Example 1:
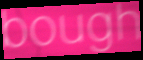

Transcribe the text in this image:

bough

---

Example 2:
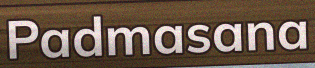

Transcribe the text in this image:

Padmasana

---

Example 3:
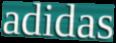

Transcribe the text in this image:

adidas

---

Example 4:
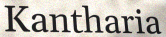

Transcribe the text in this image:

Kantharia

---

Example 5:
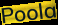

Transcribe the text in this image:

Poola